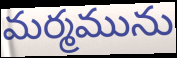
మర్మమును